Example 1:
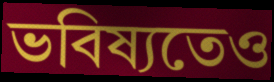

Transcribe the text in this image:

ভবিষ্যতেও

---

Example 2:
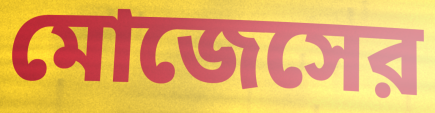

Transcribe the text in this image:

মোজেসের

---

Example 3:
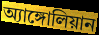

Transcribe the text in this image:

অ্যাঙ্গোলিয়ান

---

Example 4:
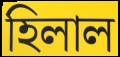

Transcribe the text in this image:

হিলাল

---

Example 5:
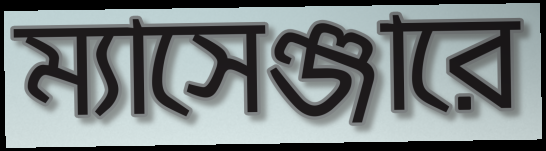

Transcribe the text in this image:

ম্যাসেঞ্জারে